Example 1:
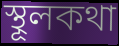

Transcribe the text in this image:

স্থূলকথা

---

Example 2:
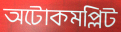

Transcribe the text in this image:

অটোকমপ্লিট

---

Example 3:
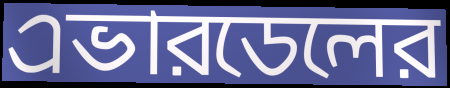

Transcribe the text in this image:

এভারডেলের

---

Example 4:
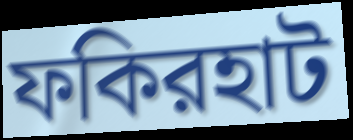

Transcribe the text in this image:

ফকিরহাট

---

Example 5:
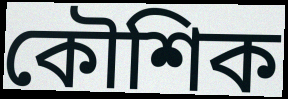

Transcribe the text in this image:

কৌশিক